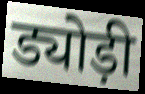
ड्योड़ी